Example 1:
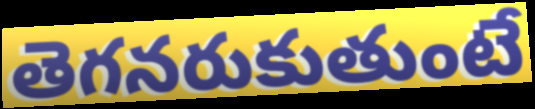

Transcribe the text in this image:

తెగనరుకుతుంటే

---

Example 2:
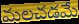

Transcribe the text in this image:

మలచడమే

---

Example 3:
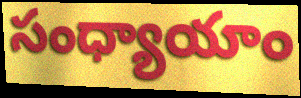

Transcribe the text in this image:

సంధ్యాయాం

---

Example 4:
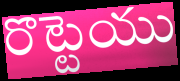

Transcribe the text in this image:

రొట్టెయు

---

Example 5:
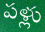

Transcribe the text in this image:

పళ్లు